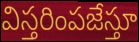
విస్తరింపజేస్తూ